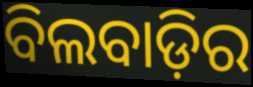
ବିଲବାଡ଼ିର